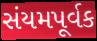
સંયમપૂર્વક